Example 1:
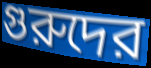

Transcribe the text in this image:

গুরুদের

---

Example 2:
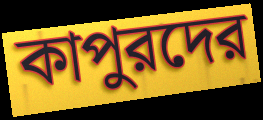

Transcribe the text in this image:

কাপুরদের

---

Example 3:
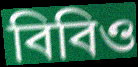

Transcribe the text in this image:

বিবিও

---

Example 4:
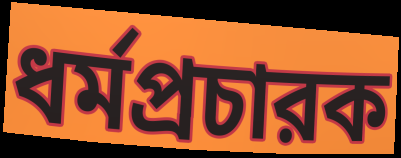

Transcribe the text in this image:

ধর্মপ্রচারক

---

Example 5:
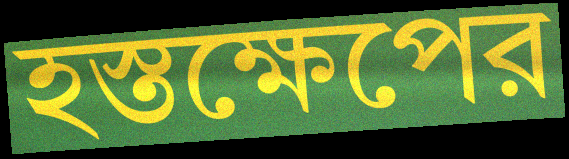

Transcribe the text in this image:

হস্তক্ষেপের